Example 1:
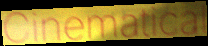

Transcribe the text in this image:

Cinematical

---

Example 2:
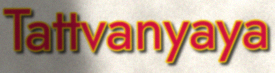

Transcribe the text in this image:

Tattvanyaya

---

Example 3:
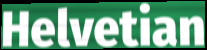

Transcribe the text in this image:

Helvetian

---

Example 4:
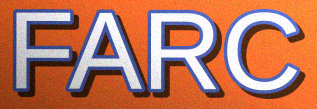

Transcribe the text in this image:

FARC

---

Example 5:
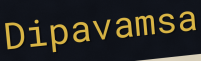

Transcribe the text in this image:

Dipavamsa